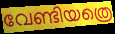
വേണ്ടിയത്രെ